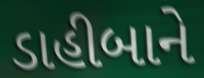
ડાહીબાને